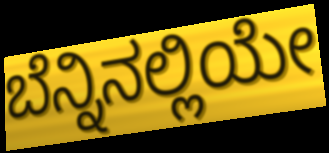
ಬೆನ್ನಿನಲ್ಲಿಯೇ